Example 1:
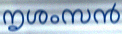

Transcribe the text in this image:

നൃശംസൻ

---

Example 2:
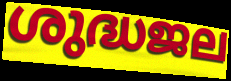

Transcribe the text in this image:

ശുദ്ധജല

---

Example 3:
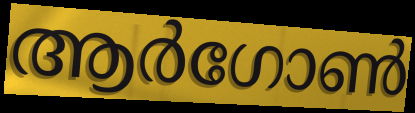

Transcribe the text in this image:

ആർഗോൺ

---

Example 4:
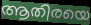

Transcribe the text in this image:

ആതിരയെ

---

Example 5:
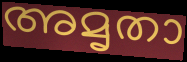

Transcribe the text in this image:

അമൃതാ